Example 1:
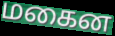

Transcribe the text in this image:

மகைன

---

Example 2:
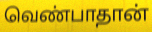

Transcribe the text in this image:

வெண்பாதான்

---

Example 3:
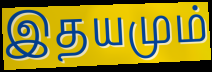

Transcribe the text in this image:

இதயமும்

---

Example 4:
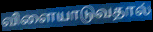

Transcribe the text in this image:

விளையாடுவதால்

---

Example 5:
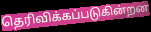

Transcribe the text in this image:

தெரிவிக்கப்படுகின்றன